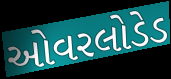
ઓવરલોડેડ